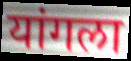
यांगला